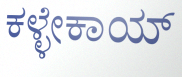
ಕಳ್ಳೇಕಾಯ್